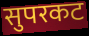
सुपरकट